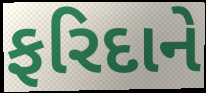
ફરિદાને